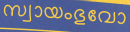
സ്വായംഭുവോ